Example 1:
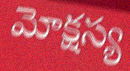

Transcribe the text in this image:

మోక్షస్య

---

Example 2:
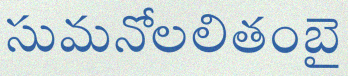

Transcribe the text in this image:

సుమనోలలితంబై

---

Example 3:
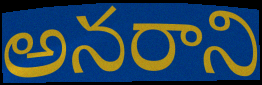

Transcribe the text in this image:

అనరాని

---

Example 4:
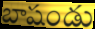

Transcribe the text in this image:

బాషండు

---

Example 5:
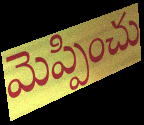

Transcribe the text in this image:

మెప్పించు